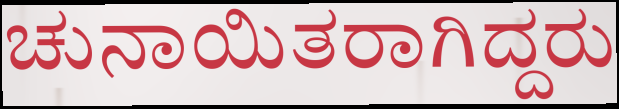
ಚುನಾಯಿತರಾಗಿದ್ದರು